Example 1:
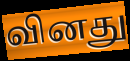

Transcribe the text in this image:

வினது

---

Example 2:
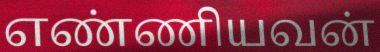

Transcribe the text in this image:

எண்ணியவன்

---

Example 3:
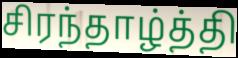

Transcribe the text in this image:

சிரந்தாழ்த்தி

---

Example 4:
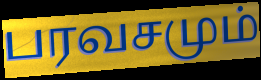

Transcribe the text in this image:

பரவசமும்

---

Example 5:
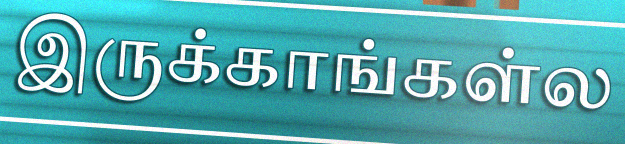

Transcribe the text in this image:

இருக்காங்கள்ல